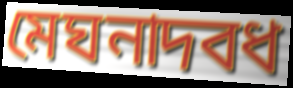
মেঘনাদবধ